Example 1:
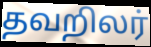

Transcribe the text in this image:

தவறிலர்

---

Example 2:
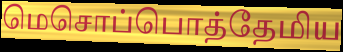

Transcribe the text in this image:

மெசொப்பொத்தேமிய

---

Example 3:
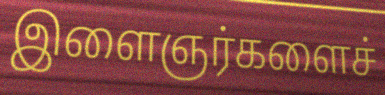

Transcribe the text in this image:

இளைஞர்களைச்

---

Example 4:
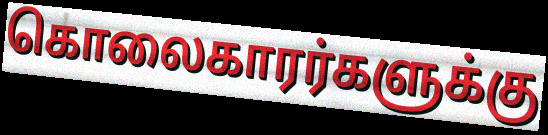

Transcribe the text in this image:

கொலைகாரர்களுக்கு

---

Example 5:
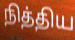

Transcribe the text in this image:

நித்திய